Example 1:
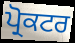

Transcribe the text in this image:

ਪ੍ਰੋਕਟਰ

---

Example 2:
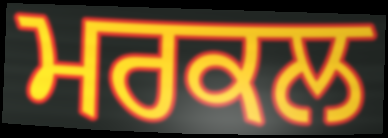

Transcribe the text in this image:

ਮਰਕਲ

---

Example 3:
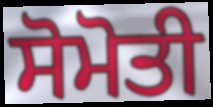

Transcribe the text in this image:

ਸੋਮੋਤੀ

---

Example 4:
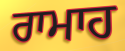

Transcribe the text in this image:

ਰਾਮਾਹ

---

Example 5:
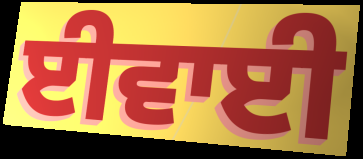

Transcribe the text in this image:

ਈਵਾਈ